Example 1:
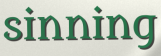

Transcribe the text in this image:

sinning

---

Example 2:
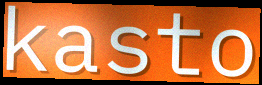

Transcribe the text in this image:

kasto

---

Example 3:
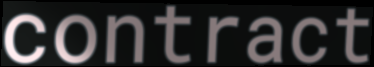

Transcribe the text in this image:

contract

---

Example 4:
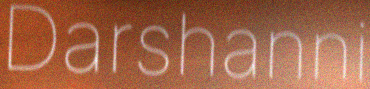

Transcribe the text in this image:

Darshanni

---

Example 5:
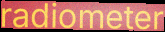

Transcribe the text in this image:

radiometer